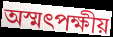
অস্মৎপক্ষীয়